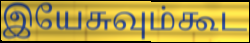
இயேசுவும்கூட